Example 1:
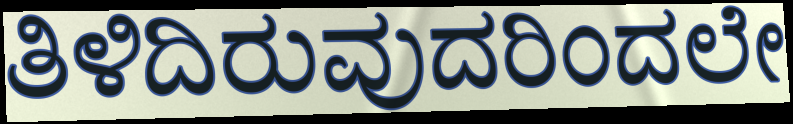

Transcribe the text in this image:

ತಿಳಿದಿರುವುದರಿಂದಲೇ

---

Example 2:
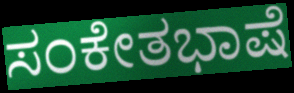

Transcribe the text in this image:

ಸಂಕೇತಭಾಷೆ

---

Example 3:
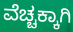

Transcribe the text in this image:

ವೆಚ್ಚಕ್ಕಾಗಿ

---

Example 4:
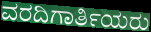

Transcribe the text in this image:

ವರದಿಗಾರ್ತಿಯರು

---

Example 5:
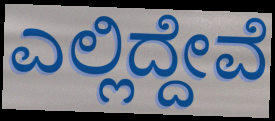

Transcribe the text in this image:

ಎಲ್ಲಿದ್ದೇವೆ